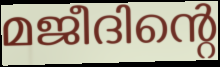
മജീദിന്റെ